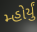
મ્હોર્યું